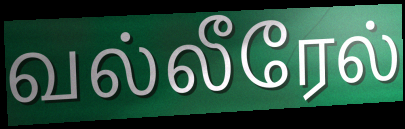
வல்லீரேல்